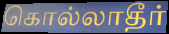
கொல்லாதீர்